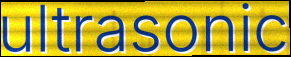
ultrasonic